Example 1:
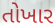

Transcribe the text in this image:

તોખાર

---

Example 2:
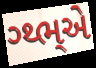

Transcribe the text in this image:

ગ્થ્ભ્એ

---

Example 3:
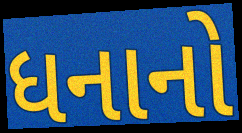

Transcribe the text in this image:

ધનાનો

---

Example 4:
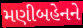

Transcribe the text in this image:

મણીબહેનને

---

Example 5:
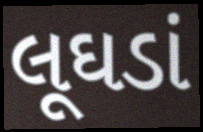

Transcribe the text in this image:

લૂઘડાં